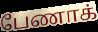
பேணாக்